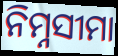
ନିମ୍ନସୀମା